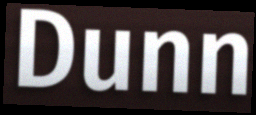
Dunn